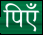
पिएँ